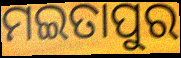
ମଇତାପୁର